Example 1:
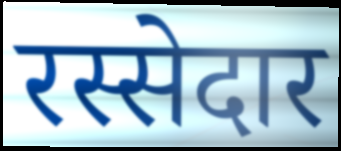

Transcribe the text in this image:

रस्सेदार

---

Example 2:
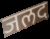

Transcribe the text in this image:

जलद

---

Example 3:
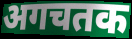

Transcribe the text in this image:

अगचतक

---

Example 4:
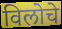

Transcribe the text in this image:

विलोचे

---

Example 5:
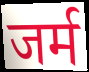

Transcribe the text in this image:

जर्म